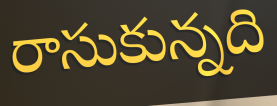
రాసుకున్నది